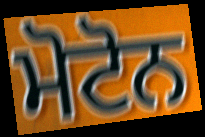
ਮੋਟੋਨ